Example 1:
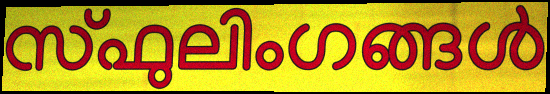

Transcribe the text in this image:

സ്ഫുലിംഗങ്ങൾ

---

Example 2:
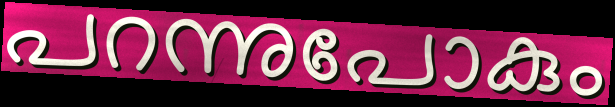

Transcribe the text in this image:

പറന്നുപോകും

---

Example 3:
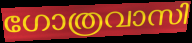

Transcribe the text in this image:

ഗോത്രവാസി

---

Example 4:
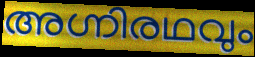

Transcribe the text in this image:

അഗ്നിരഥവും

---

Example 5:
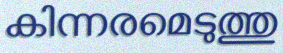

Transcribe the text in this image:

കിന്നരമെടുത്തു